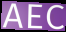
AEC